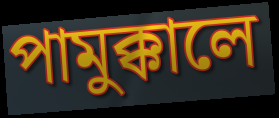
পামুক্কালে